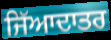
ਜਿੱਆਦਾਤਰ